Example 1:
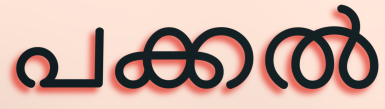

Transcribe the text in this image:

പക്കൽ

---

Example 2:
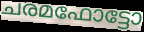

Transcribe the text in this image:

ചരമഫോട്ടോ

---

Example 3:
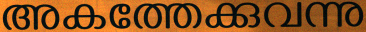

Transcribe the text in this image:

അകത്തേക്കുവന്നു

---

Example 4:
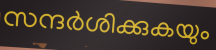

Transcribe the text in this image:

സന്ദർശിക്കുകയും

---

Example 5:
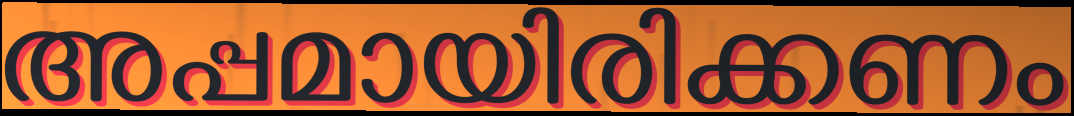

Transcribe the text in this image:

അപ്പമായിരിക്കണം